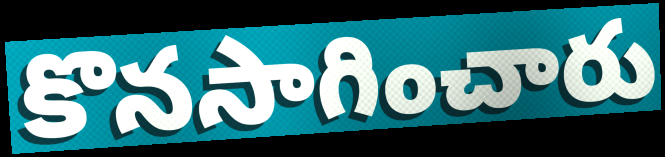
కొనసాగించారు